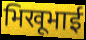
भिखूभाई